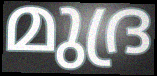
മുദ്ര